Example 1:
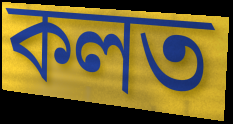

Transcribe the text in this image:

কলত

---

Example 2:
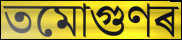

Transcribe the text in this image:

তমোগুণৰ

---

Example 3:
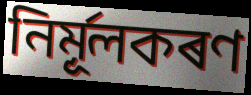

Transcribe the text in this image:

নিৰ্মূলকৰণ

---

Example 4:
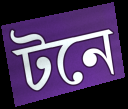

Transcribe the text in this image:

টনে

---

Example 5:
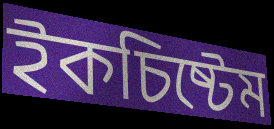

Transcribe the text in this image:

ইকচিষ্টেম